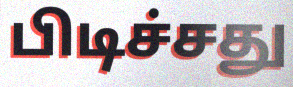
பிடிச்சது